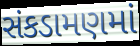
સંકડામણમાં